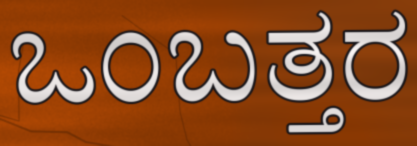
ಒಂಬತ್ತರ